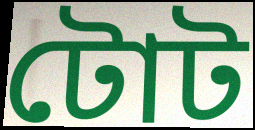
টোট